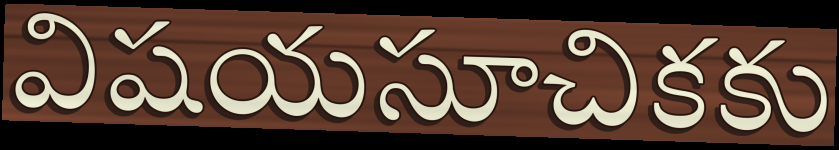
విషయసూచికకు